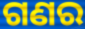
ଗଣର